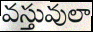
వస్తువులా